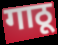
गाठू